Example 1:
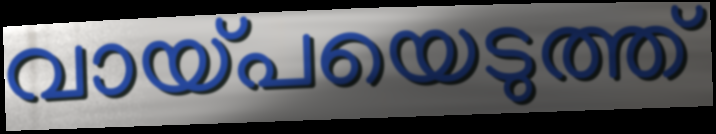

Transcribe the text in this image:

വായ്പയെടുത്ത്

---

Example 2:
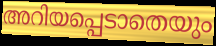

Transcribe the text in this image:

അറിയപ്പെടാതെയും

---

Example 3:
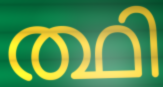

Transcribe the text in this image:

ത്ഥി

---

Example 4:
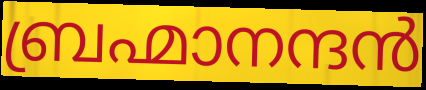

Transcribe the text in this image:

ബ്രഹ്മാനന്ദൻ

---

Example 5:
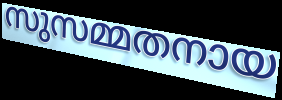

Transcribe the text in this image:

സുസമ്മതനായ